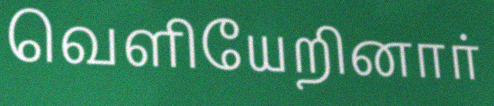
வெளியேறினார்